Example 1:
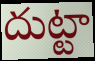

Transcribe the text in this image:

దుట్టా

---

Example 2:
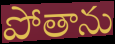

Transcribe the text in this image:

పోతాను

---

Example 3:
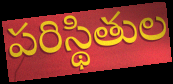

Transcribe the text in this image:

పరిస్థితుల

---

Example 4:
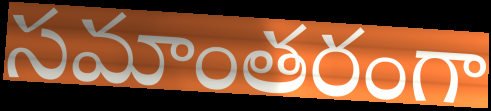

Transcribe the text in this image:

సమాంతరంగా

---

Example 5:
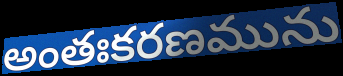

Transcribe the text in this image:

అంతఃకరణమును